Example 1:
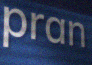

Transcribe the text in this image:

pran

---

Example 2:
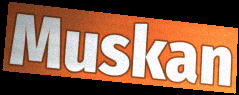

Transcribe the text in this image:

Muskan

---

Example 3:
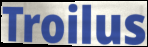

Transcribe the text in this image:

Troilus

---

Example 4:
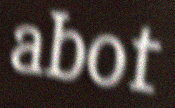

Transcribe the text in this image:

abot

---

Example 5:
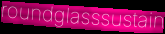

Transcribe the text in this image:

roundglasssustain